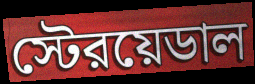
স্টেরয়েডাল